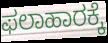
ಫಲಾಹಾರಕ್ಕೆ